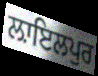
ਲ਼ਾਇਲਪੁਰ